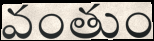
వంతుం